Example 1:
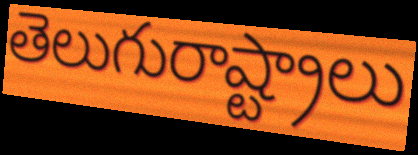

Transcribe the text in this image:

తెలుగురాష్ట్రాలు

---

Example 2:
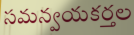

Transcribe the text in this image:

సమన్వయకర్తల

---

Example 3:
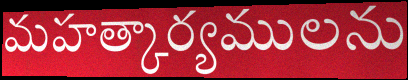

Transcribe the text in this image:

మహత్కార్యములను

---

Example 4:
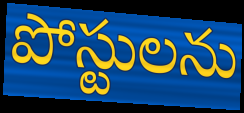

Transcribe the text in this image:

పోస్టులను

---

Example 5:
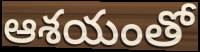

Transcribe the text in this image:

ఆశయంతో